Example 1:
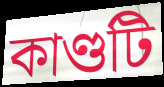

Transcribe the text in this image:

কাণ্ডটি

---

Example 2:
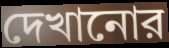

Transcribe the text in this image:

দেখানোর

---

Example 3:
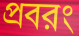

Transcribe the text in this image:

প্রবরং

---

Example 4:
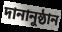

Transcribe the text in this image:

দানানুষ্ঠান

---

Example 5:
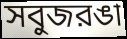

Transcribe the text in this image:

সবুজরঙা